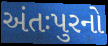
અંતઃપુરનો